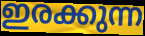
ഇരക്കുന്ന